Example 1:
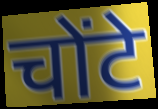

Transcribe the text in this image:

चोंटे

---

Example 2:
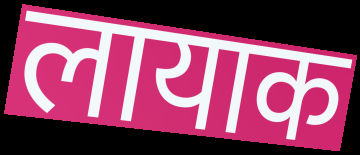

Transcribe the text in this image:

लायाक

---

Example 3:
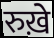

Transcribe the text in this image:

रुख़े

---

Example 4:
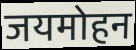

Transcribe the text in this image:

जयमोहन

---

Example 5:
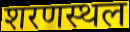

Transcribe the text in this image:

शरणस्थल